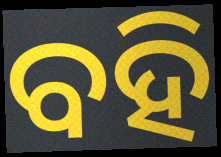
ବହି